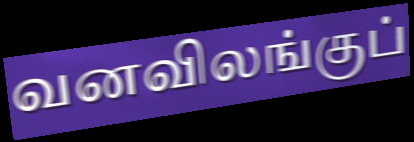
வனவிலங்குப்